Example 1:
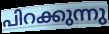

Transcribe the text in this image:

പിറക്കുന്നു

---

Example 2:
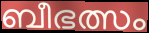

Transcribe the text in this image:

ബീഭത്സം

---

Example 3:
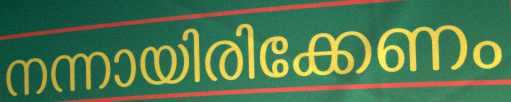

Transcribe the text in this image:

നന്നായിരിക്കേണം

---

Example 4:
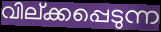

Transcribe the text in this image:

വില്ക്കപ്പെടുന്ന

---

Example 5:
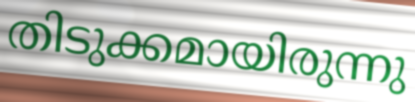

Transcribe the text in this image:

തിടുക്കമായിരുന്നു